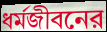
ধর্মজীবনের